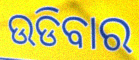
ଉଡିବାର